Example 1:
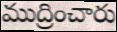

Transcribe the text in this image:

ముద్రించారు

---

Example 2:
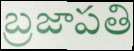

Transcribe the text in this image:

బ్రజాపతి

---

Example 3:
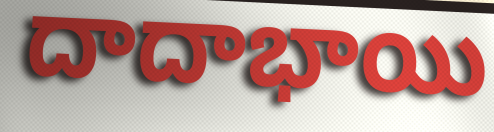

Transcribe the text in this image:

దాదాభాయి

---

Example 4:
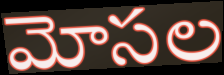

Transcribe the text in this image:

మోసల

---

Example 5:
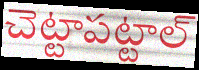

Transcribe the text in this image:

చెట్టాపట్టాల్